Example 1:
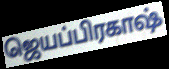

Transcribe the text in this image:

ஜெயப்பிரகாஷ்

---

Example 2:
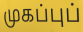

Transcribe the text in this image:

முகப்புப்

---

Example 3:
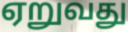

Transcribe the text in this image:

ஏறுவது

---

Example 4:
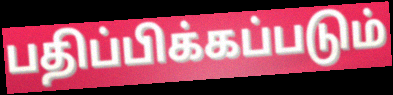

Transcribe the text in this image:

பதிப்பிக்கப்படும்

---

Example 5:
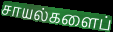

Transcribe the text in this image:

சாயல்களைப்